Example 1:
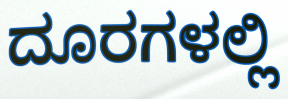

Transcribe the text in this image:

ದೂರಗಳಲ್ಲಿ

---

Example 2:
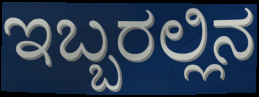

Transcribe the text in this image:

ಇಬ್ಬರಲ್ಲಿನ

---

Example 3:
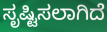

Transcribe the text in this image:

ಸೃಷ್ಟಿಸಲಾಗಿದೆ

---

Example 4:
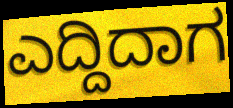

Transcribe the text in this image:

ಎದ್ದಿದಾಗ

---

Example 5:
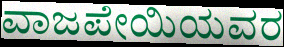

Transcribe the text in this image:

ವಾಜಪೇಯಿಯವರ